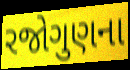
રજોગુણના